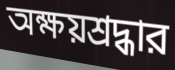
অক্ষয়শ্রদ্ধার